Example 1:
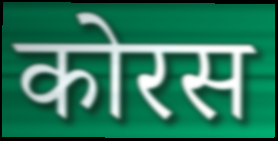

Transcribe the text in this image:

कोरस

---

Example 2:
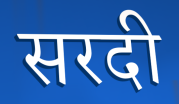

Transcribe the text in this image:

सरदी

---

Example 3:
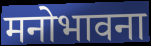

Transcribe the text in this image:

मनोभावना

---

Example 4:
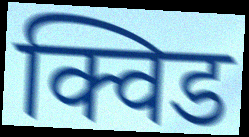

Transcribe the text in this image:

क्विड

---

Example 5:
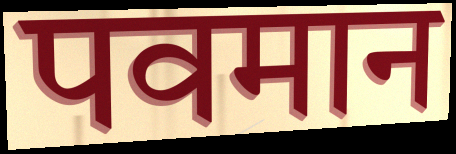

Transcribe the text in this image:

पवमान